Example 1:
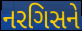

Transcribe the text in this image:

નરગિસને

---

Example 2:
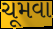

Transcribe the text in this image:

ચૂમવા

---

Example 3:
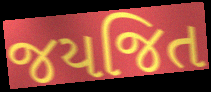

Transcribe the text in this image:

જયજિત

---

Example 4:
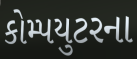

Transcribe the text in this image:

કોમ્પયુટરના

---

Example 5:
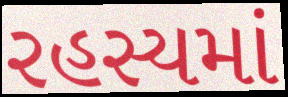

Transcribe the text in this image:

રહસ્યમાં